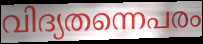
വിദ്യതന്നെപരം